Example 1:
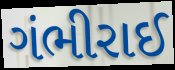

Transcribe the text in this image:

ગંભીરાઈ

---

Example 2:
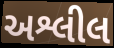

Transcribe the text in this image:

અશ્લીલ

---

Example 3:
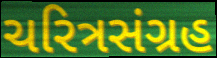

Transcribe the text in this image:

ચરિત્રસંગ્રહ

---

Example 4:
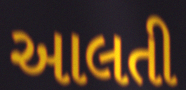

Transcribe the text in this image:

આલતી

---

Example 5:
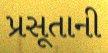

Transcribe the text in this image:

પ્રસૂતાની